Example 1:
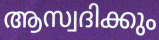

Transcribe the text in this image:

ആസ്വദിക്കും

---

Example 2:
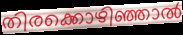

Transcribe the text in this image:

തിരക്കൊഴിഞ്ഞാൽ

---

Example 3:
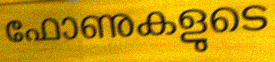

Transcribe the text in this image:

ഫോണുകളുടെ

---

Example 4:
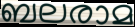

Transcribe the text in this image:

ബലരാമ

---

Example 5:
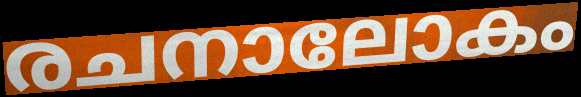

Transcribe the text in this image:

രചനാലോകം